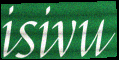
isivu